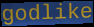
godlike